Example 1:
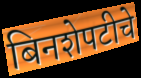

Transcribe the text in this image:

बिनशेपटीचे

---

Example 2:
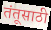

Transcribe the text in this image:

तंतूसाठी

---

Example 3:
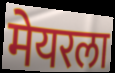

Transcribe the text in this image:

मेयरला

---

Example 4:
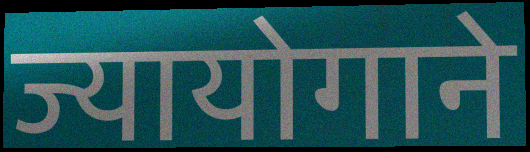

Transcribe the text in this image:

ज्यायोगाने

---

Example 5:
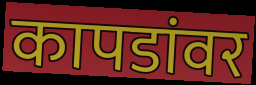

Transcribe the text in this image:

कापडांवर